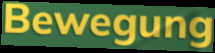
Bewegung